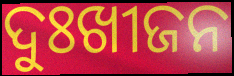
ଦୁଃଖୀଜନ